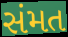
સંમત